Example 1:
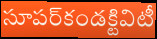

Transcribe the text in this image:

సూపర్‌కండక్టివిటీ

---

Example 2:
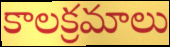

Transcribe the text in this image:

కాలక్రమాలు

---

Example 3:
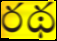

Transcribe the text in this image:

రథ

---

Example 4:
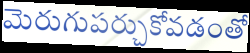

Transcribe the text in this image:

మెరుగుపర్చుకోవడంతో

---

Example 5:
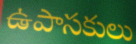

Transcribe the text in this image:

ఉపాసకులు